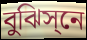
বুঝিস্‌নে